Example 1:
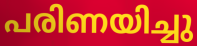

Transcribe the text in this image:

പരിണയിച്ചു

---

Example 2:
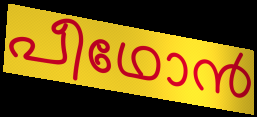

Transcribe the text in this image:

പീഥോൻ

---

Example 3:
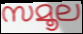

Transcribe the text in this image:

സമൂല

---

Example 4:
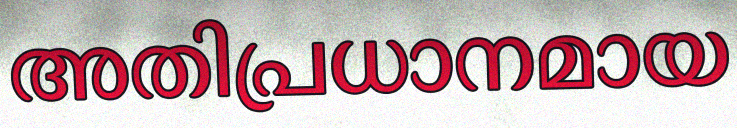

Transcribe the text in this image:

അതിപ്രധാനമായ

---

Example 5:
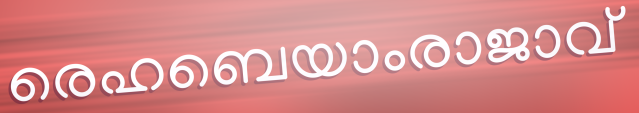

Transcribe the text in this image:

രെഹബെയാംരാജാവ്